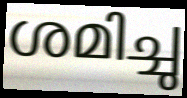
ശമിച്ചു